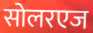
सोलरएज